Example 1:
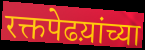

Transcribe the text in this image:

रक्तपेढय़ांच्या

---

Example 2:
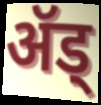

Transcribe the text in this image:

ॲड्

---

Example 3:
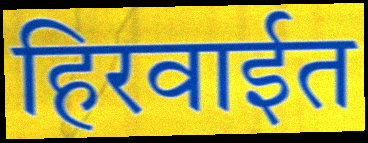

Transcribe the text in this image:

हिरवाईत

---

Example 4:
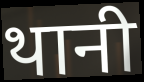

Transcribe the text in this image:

थानी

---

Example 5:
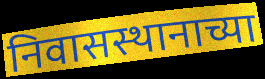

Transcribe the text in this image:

निवासस्थानाच्या